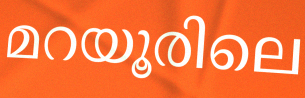
മറയൂരിലെ